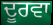
ਦੂਰਵਾ